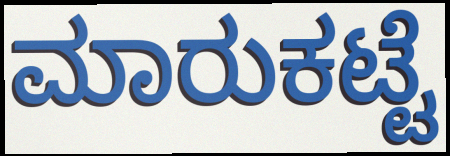
ಮಾರುಕಟ್ಟೆ